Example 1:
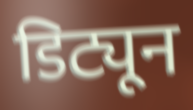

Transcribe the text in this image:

डिट्यून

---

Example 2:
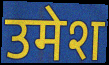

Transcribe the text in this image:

उमेश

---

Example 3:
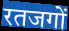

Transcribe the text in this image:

रतजगों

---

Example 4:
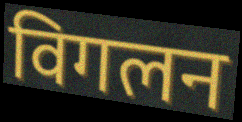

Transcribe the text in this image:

विगलन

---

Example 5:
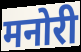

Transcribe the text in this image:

मनोरी